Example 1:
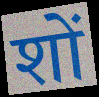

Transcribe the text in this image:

शों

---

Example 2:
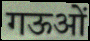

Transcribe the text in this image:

गऊओं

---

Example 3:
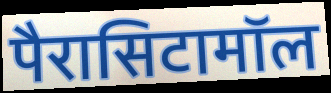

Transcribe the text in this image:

पैरासिटामॉल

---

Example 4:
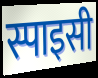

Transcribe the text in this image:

स्पाइसी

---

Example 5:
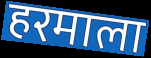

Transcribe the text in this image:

हरमाला